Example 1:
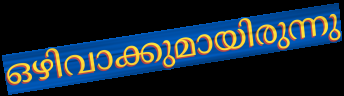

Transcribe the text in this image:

ഒഴിവാക്കുമായിരുന്നു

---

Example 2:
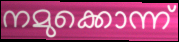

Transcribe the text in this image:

നമുക്കൊന്ന്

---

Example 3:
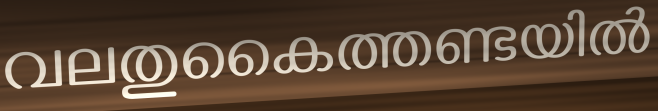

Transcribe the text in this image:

വലതുകൈത്തണ്ടയിൽ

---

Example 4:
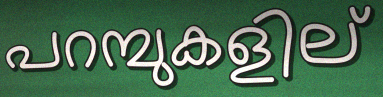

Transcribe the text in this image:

പറമ്പുകളില്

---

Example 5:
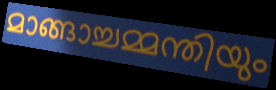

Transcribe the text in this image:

മാങ്ങാച്ചമ്മന്തിയും